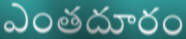
ఎంతదూరం